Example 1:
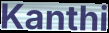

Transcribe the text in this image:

Kanthi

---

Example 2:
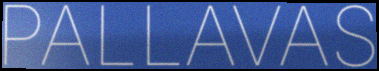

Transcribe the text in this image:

PALLAVAS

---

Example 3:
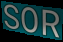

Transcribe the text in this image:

SOR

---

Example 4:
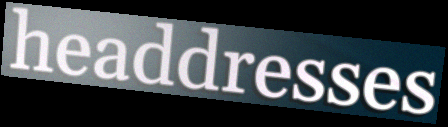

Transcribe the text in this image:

headdresses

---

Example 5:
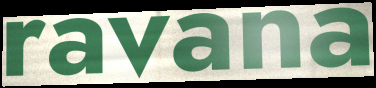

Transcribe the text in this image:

ravana